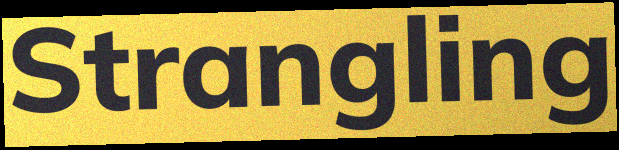
Strangling